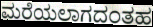
ಮರೆಯಲಾಗದಂತಹ